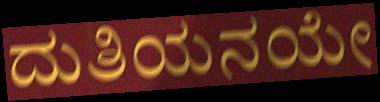
ದುತಿಯನಯೇ